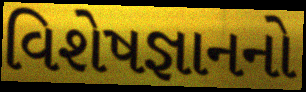
વિશેષજ્ઞાનનો